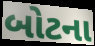
બોટના